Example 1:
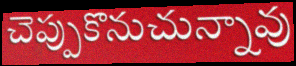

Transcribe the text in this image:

చెప్పుకొనుచున్నావు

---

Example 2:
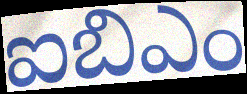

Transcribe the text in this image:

ఐబిఎం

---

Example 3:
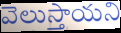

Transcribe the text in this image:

వెలుస్తాయని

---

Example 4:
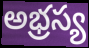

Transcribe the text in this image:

అభ్రస్య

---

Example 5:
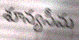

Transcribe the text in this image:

శూన్యసీమ